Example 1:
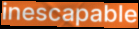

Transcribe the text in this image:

inescapable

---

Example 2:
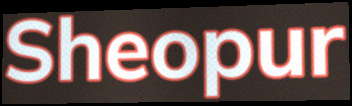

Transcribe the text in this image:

Sheopur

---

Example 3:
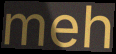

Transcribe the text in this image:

meh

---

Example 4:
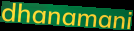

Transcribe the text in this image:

dhanamani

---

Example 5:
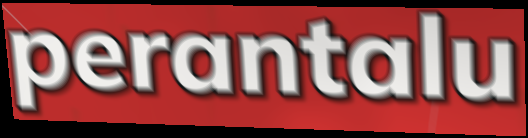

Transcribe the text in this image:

perantalu